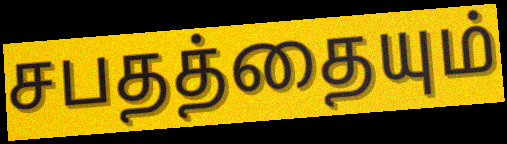
சபதத்தையும்